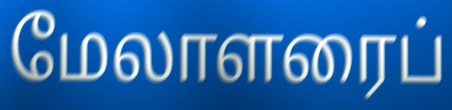
மேலாளரைப்